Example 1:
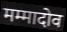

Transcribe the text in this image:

मम्मादोव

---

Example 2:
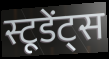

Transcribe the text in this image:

स्टूडेंट्स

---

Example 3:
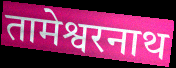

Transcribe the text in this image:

तामेश्वरनाथ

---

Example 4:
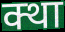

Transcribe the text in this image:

क्था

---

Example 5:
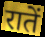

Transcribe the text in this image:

रातें